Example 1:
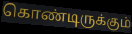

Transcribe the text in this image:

கொண்டிருக்கும்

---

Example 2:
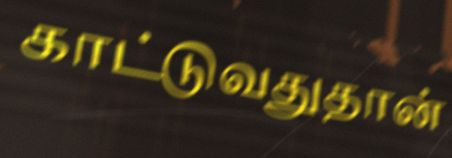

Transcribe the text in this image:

காட்டுவதுதான்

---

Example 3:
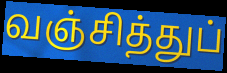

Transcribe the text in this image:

வஞ்சித்துப்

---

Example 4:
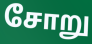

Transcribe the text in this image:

சோறு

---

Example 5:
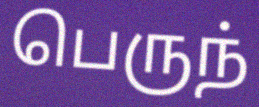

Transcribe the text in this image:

பெருந்